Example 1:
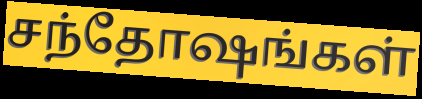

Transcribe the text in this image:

சந்தோஷங்கள்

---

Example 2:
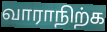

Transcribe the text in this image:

வாராநிற்க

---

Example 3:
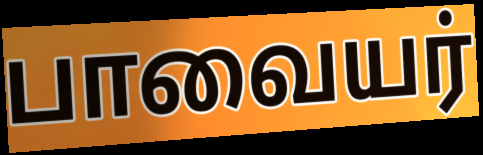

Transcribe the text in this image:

பாவையர்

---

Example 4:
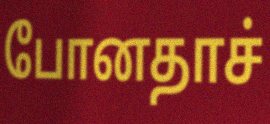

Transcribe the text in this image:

போனதாச்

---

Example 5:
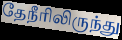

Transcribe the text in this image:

தேநீரிலிருந்து